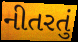
નીતરતું